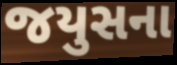
જયુસના